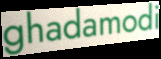
ghadamodi